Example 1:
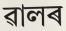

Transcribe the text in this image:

ৱালৰ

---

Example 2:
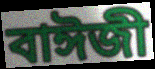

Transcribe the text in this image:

বাঈজী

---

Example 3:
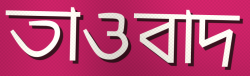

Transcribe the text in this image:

তাওবাদ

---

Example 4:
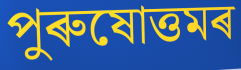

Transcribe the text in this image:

পুৰুষোত্তমৰ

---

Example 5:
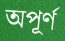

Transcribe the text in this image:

অপূৰ্ণ